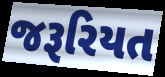
જરૂરિયત